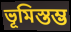
ভূমিস্তম্ভ